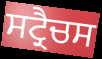
ਸਟ੍ਰੈਚਸ